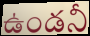
ఉండనీ